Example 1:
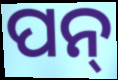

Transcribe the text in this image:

ପନ୍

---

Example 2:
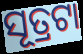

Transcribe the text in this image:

ସୂତ୍ରଟା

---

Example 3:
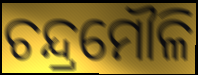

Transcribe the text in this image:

ଚନ୍ଦ୍ରମୌଳି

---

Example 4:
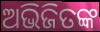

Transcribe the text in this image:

ଅଭିଜିତଙ୍କ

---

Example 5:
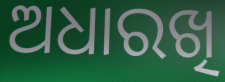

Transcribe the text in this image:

ଅଧାରଖି